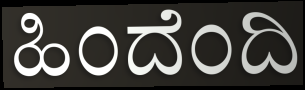
ಹಿಂದೆಂದಿ